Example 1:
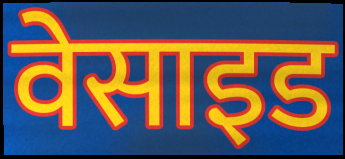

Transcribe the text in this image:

वेसाइड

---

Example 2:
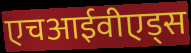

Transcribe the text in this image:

एचआईवीएड्स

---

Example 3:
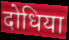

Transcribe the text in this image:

दोधिया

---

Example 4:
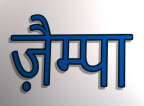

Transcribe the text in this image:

ज़ैम्पा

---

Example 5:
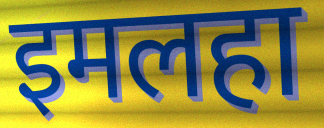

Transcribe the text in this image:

इमलहा